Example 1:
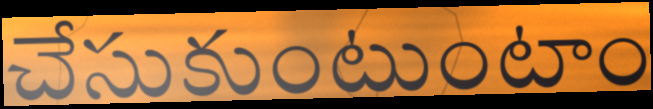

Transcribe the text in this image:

చేసుకుంటుంటాం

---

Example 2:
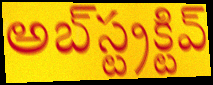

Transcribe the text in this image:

అబ్‌స్ట్రక్టివ్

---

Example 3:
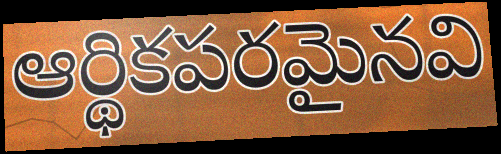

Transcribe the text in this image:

ఆర్థికపరమైనవి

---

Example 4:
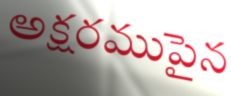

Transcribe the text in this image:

అక్షరముపైన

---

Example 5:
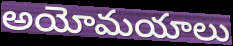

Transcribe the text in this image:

అయోమయాలు